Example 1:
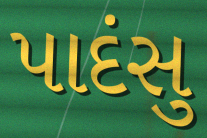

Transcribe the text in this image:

પાદંસુ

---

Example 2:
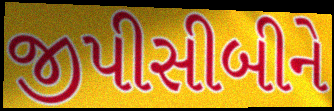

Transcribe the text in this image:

જીપીસીબીને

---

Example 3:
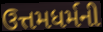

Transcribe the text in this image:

ઉત્તમધર્મની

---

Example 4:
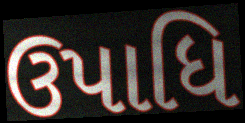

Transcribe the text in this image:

ઉપાધિ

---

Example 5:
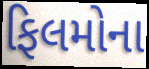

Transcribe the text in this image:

ફિલમોના